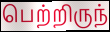
பெற்றிருந்